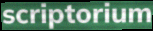
scriptorium